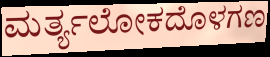
ಮರ್ತ್ಯಲೋಕದೊಳಗಣ